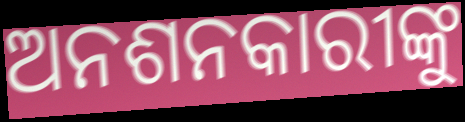
ଅନଶନକାରୀଙ୍କୁ